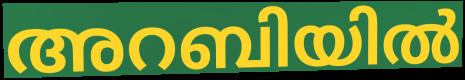
അറബിയിൽ